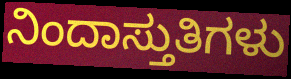
ನಿಂದಾಸ್ತುತಿಗಳು